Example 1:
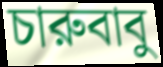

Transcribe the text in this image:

চারুবাবু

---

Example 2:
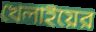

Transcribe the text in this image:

খেলাইয়ের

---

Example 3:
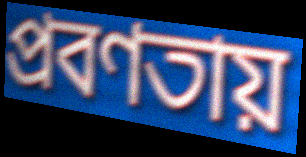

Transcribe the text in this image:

প্রবণতায়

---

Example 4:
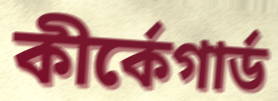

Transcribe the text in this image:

কীর্কেগার্ড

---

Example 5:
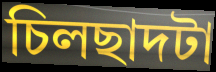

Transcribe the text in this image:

চিলছাদটা